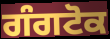
ਗੰਗਟੋਕ